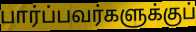
பார்ப்பவர்களுக்குப்